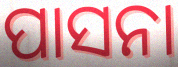
ପାସନା